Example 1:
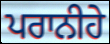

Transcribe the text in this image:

ਪਰਾਨੀਹੇ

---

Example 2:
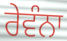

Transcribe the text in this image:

ਰੇਵੰਨਾ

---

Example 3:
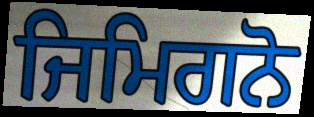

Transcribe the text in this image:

ਜਿਮਿਗਨੋ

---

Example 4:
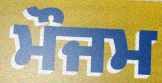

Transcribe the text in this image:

ਮੌਜਮ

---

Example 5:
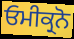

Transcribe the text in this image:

ਓਮੀਕ੍ਰਨੋ